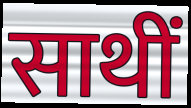
साथीं